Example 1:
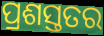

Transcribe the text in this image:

ପ୍ରଶସ୍ତତର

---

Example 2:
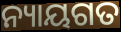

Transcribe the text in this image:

ନ୍ୟାୟଗତ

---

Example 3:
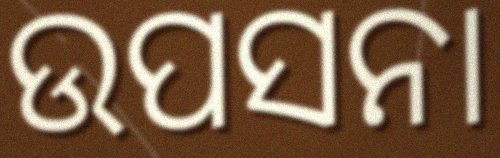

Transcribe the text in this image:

ଉପସନା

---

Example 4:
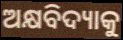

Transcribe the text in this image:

ଅକ୍ଷବିଦ୍ୟାକୁ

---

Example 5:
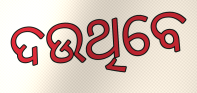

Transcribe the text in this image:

ଦଉଥିବେ